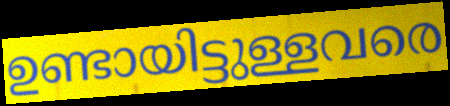
ഉണ്ടായിട്ടുള്ളവരെ